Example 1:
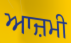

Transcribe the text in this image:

ਆਜ਼ਮੀ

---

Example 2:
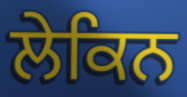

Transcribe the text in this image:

ਲੇਕਿਨ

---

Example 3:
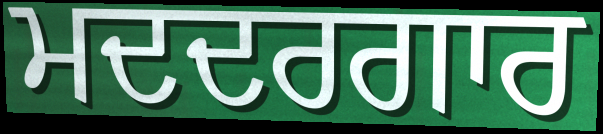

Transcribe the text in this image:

ਮਦਦਰਗਾਰ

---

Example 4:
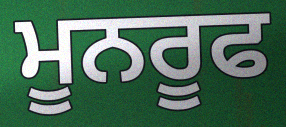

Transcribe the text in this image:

ਮੂਨਰੂਫ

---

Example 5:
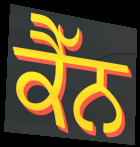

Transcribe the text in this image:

ਕੈੱਨ